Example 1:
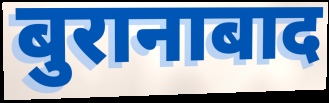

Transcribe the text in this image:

बुरानाबाद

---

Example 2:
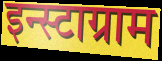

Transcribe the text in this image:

इन्स्टाग्राम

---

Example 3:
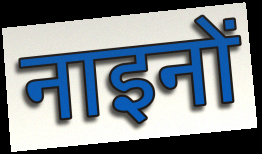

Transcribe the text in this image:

नाइनों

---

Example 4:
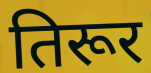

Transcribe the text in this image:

तिरूर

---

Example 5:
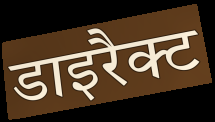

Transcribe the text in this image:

डाइरैक्ट